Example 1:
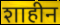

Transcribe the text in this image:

शाहीन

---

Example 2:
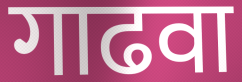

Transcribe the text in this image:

गाढवा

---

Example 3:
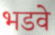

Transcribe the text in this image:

भडवे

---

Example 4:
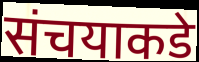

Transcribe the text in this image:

संचयाकडे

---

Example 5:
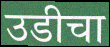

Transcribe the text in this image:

उडीचा